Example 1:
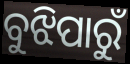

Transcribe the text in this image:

ବୁଝିପାରୁଁ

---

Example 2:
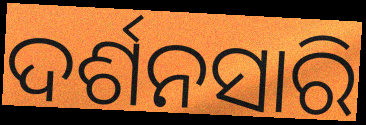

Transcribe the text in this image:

ଦର୍ଶନସାରି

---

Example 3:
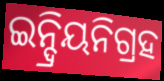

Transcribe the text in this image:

ଇନ୍ଦ୍ରିୟନିଗ୍ରହ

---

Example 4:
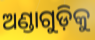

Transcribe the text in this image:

ଅଣ୍ଡାଗୁଡ଼ିକୁ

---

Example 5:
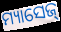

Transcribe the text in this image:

ମ୍ୟାସେଜ୍